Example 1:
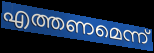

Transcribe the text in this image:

എത്തണമെന്ന്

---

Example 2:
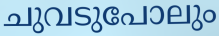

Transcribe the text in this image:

ചുവടുപോലും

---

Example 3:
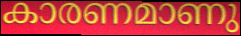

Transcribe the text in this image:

കാരണമാണു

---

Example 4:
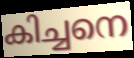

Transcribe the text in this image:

കിച്ചനെ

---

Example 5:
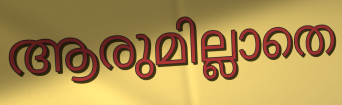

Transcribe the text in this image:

ആരുമില്ലാതെ